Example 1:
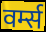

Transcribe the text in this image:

वर्म्स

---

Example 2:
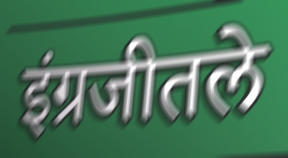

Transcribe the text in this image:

इंग्रजीतले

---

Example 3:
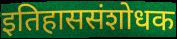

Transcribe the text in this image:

इतिहाससंशोधक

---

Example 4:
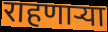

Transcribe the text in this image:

राहणार्‍या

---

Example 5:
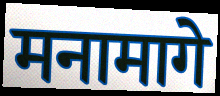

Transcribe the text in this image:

मनामागे